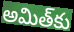
అమిత్‌కు